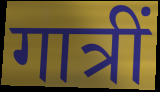
गात्रीं